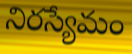
నిరస్యేమం